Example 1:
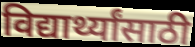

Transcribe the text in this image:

विद्यार्थ्यांसाठी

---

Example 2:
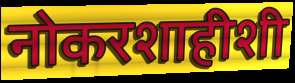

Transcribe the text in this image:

नोकरशाहीशी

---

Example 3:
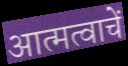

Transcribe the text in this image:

आत्मत्वाचें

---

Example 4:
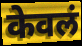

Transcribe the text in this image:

केवलं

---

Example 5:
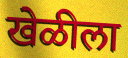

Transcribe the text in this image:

खेळीला